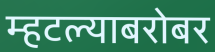
म्हटल्याबरोबर